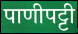
पाणीपट्टी